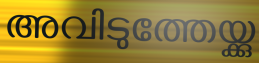
അവിടുത്തേയ്ക്കു